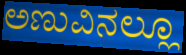
ಅಣುವಿನಲ್ಲೂ